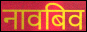
नावबिव